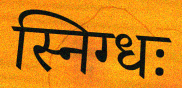
स्निग्धः